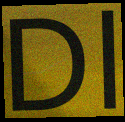
Dl